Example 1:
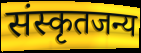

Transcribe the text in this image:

संस्कृतजन्य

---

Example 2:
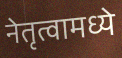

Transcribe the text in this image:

नेतृत्वामध्ये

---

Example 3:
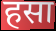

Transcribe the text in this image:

हसा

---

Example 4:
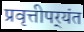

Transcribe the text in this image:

प्रवृत्तीपर्यंत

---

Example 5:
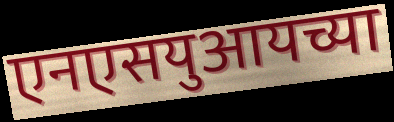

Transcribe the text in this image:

एनएसयुआयच्या